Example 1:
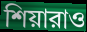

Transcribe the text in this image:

শিয়ারাও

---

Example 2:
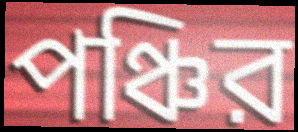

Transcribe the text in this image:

পঞ্চির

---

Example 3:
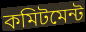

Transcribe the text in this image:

কমিটমেন্ট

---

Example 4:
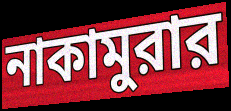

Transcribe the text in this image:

নাকামুরার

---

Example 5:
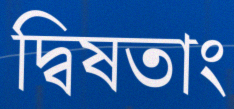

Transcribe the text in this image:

দ্বিষতাং